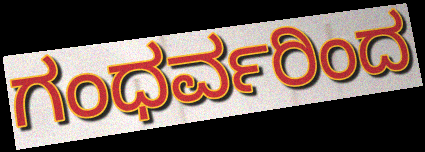
ಗಂಧರ್ವರಿಂದ